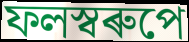
ফলস্বৰুপে